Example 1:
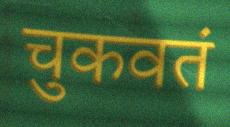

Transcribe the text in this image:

चुकवतं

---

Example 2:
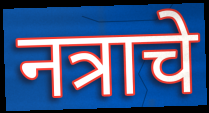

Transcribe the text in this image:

नत्राचे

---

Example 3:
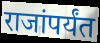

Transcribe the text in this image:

राजांपर्यंत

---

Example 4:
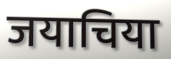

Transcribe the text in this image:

जयाचिया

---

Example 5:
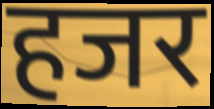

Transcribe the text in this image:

हजर